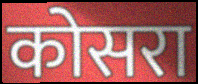
कोसरा